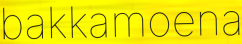
bakkamoena